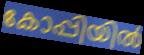
കോപ്പിയിൽ